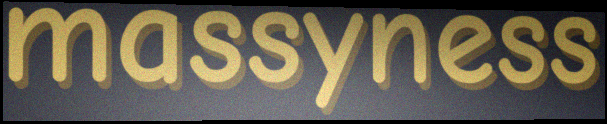
massyness